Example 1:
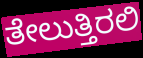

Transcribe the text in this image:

ತೇಲುತ್ತಿರಲಿ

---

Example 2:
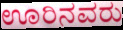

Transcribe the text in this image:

ಊರಿನವರು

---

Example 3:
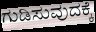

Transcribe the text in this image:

ಗುಡಿಸುವುದಕ್ಕೆ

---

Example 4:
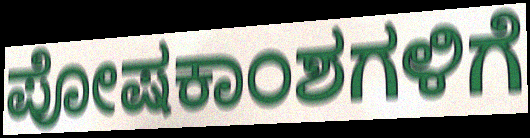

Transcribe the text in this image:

ಪೋಷಕಾಂಶಗಳಿಗೆ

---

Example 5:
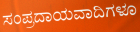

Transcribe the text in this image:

ಸಂಪ್ರದಾಯವಾದಿಗಳೂ